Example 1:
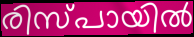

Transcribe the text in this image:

രിസ്പായിൽ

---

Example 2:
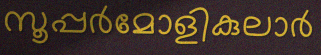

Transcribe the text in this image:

സൂപ്പർമോളികുലാർ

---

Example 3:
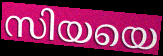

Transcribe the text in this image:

സിയയെ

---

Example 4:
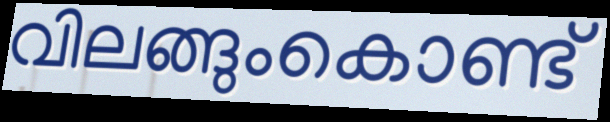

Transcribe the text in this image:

വിലങ്ങുംകൊണ്ട്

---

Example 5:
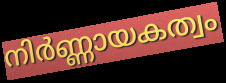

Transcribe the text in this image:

നിർണ്ണായകത്വം